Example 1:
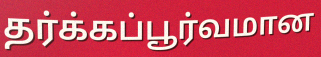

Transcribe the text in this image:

தர்க்கப்பூர்வமான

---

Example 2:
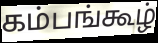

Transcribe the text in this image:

கம்பங்கூழ்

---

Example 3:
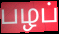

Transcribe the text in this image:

பழப்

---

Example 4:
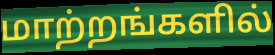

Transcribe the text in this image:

மாற்றங்களில்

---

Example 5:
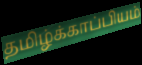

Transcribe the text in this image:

தமிழ்க்காப்பியம்